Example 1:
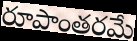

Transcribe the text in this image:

రూపాంతరమే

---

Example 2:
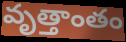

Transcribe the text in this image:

వృత్తాంతం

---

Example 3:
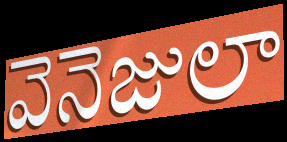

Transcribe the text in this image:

వెనెజులా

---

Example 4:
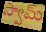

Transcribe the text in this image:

స్వామ్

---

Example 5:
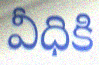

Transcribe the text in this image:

వీధికి